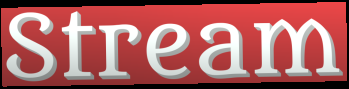
Stream